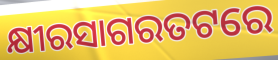
କ୍ଷୀରସାଗରତଟରେ